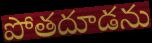
పోతదూడను